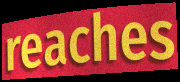
reaches